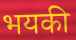
भयकी